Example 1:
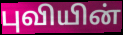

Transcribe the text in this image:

புவியின்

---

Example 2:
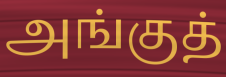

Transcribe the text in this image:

அங்குத்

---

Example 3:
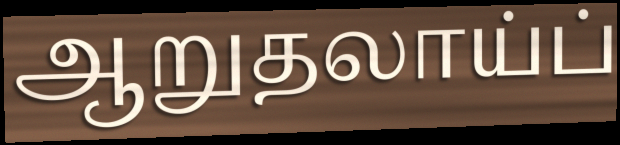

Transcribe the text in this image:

ஆறுதலாய்ப்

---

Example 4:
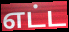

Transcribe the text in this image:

எட்ட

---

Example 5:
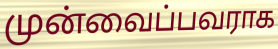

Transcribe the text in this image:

முன்வைப்பவராக